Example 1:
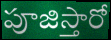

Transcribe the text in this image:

పూజిస్తారో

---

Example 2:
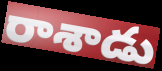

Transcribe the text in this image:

రాశాడు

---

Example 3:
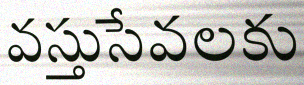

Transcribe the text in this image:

వస్తుసేవలకు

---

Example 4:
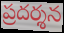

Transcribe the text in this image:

ప్రదర్శన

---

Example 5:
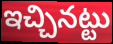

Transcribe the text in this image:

ఇచ్చినట్టు